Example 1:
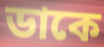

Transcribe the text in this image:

ডাকে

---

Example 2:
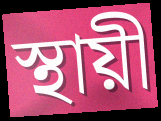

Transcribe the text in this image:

স্থায়ী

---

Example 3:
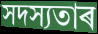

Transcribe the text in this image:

সদস্যতাৰ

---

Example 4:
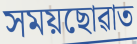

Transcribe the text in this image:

সময়ছোৱাত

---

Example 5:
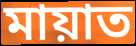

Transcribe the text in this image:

মায়াত